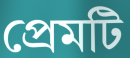
প্রেমটি